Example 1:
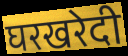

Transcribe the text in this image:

घरखरेदी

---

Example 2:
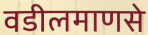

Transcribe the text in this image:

वडीलमाणसे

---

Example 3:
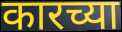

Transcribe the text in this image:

कारच्या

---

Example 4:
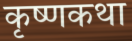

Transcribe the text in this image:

कृष्णकथा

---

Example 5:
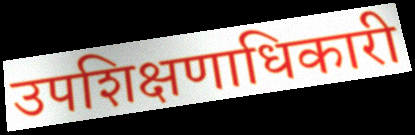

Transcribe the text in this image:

उपशिक्षणाधिकारी